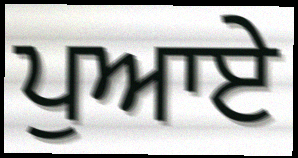
ਪੁਆਏ